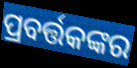
ପ୍ରବର୍ତ୍ତକଙ୍କର